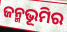
ଜନ୍ମଭୂମିର